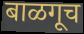
बाळगूच